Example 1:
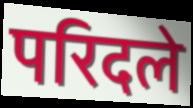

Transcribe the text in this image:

परिदले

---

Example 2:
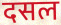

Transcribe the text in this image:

दसल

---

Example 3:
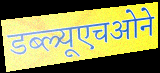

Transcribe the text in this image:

डब्ल्यूएचओने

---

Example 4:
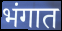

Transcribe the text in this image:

भंगात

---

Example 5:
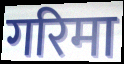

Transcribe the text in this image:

गरिमा